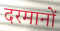
दरमानों